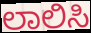
ಲಾಲಿಸಿ